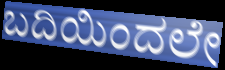
ಬದಿಯಿಂದಲೇ